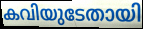
കവിയുടേതായി